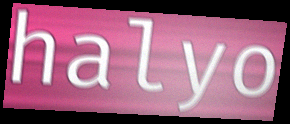
halyo